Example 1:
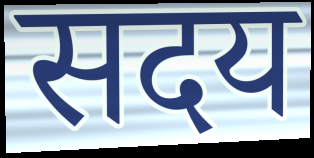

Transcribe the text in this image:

सदय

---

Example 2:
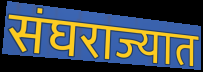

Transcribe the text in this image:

संघराज्यात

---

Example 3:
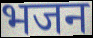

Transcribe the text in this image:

भजन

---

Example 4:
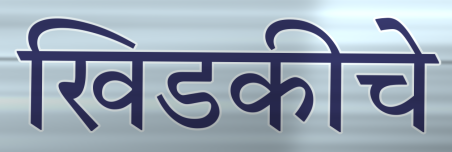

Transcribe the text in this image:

खिडकीचे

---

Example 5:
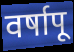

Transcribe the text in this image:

वर्षापू